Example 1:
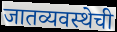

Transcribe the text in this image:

जातव्यवस्थेची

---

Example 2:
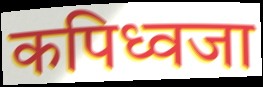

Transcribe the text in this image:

कपिध्वजा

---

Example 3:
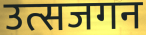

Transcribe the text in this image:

उत्सजगन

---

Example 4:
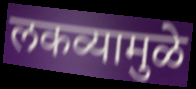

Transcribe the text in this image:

लकव्यामुळे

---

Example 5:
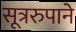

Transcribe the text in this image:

सूत्ररुपाने